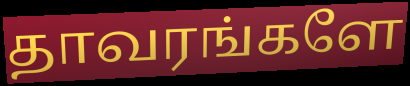
தாவரங்களே